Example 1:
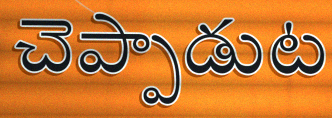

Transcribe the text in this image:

చెప్పాడుట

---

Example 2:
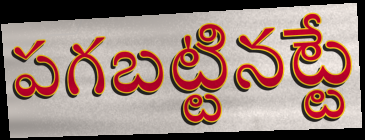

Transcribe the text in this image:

పగబట్టినట్టే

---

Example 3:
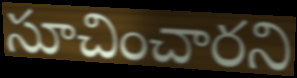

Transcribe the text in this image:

సూచించారని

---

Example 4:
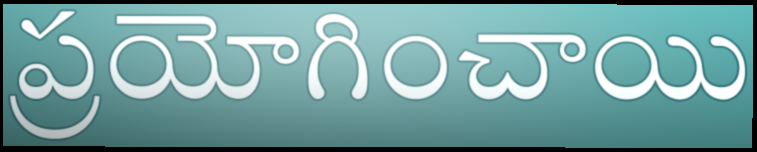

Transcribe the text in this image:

ప్రయోగించాయి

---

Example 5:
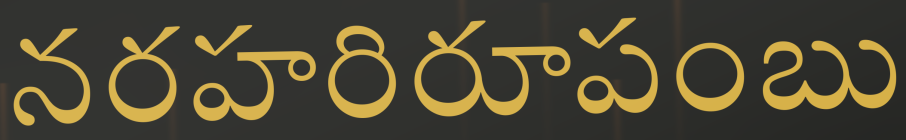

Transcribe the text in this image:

నరహరిరూపంబు